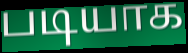
படியாக